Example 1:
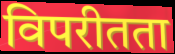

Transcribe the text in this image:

विपरीतता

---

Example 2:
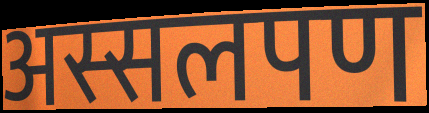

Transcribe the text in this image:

अस्सलपण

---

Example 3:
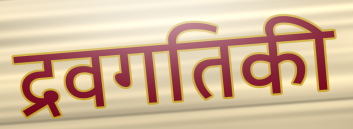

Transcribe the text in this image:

द्रवगतिकी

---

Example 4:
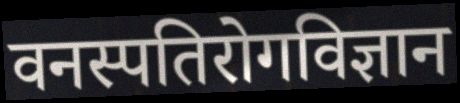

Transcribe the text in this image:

वनस्पतिरोगविज्ञान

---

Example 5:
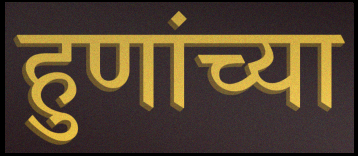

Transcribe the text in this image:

हुणांच्या